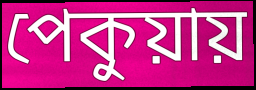
পেকুয়ায়